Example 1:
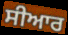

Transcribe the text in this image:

ਸੀਆਰ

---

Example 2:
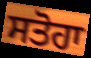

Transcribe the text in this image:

ਸਤੋਹਾ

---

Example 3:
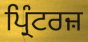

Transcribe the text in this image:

ਪ੍ਰਿੰਟਰਜ਼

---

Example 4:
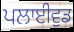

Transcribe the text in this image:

ਪਲਾਈਵੁਡ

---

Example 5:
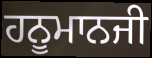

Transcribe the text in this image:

ਹਨੂਮਾਨਜੀ